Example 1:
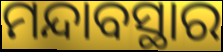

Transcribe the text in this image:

ମନ୍ଦାବସ୍ଥାର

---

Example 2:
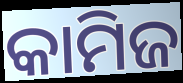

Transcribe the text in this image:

କାମିଜ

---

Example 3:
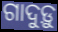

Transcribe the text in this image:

ଗାଦୁଡ଼ୁ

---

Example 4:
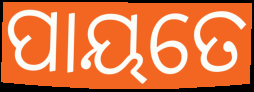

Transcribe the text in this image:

ପାୟତେ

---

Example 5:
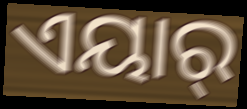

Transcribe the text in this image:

ଏୟାର୍